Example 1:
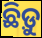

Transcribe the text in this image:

ଛିଡ଼ୁ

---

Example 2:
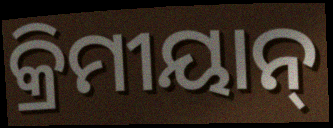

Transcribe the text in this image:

କ୍ରିମୀୟାନ୍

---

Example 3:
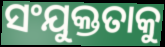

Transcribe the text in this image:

ସଂଯୁକ୍ତତାକୁ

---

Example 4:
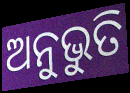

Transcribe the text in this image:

ଅନୁଭୁତି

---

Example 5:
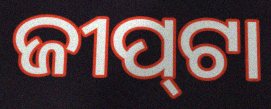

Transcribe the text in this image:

ଜୀପ୍‍ଟା